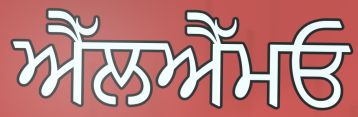
ਐੱਲਐੱਮਓ